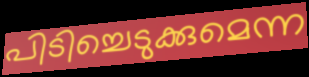
പിടിച്ചെടുക്കുമെന്ന